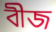
বীজ